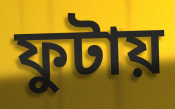
ফুটায়